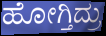
ಹೋಗ್ತಿದ್ರು